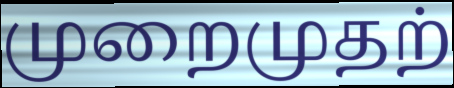
முறைமுதற்